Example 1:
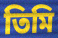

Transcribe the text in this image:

তিমি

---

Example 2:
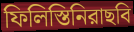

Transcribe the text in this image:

ফিলিস্তিনিরাছবি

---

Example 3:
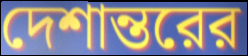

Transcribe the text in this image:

দেশান্তরের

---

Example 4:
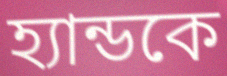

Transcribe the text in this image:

হ্যান্ডকে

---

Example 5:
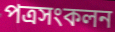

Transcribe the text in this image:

পত্রসংকলন